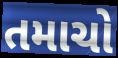
તમાચો